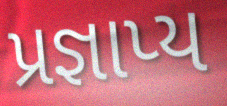
પ્રજ્ઞાપ્ય